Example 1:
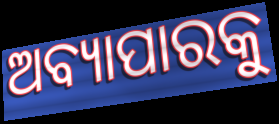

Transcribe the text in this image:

ଅବ୍ୟାପାରକୁ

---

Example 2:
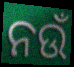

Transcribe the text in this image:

ନଉଁ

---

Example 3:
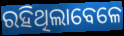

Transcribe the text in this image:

ରହିଥିଲାବେଳେ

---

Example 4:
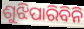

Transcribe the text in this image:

ଶୁଝିପାରିବିନି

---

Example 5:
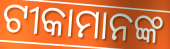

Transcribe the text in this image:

ଟୀକାମାନଙ୍କ